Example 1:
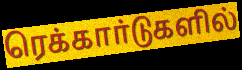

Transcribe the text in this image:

ரெக்கார்டுகளில்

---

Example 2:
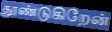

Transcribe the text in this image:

தூண்டுகிறேன்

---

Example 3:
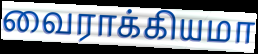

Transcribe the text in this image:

வைராக்கியமா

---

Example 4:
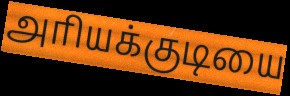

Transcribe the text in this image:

அரியக்குடியை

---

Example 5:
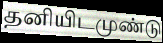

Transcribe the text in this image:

தனியிடமுண்டு